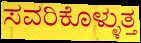
ಸವರಿಕೊಳ್ಳುತ್ತ